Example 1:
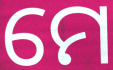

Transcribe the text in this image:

ମେ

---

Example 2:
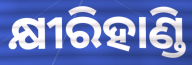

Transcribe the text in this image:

କ୍ଷୀରିହାଣ୍ଡି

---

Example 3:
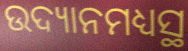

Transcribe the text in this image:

ଉଦ୍ୟାନମଧ୍ୟସ୍ଥ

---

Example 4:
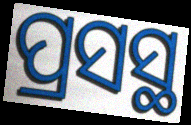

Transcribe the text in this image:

ପ୍ରସସ୍ଥ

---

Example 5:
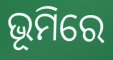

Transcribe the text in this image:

ଭୂମିରେ